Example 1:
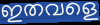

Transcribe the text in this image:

ഇതവളെ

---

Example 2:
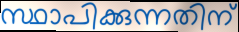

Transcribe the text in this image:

സ്ഥാപിക്കുന്നതിന്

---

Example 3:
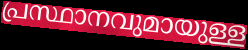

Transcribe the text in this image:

പ്രസ്ഥാനവുമായുള്ള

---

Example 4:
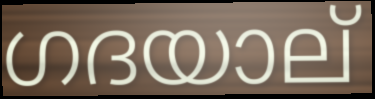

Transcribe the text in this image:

ഗദയാല്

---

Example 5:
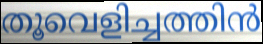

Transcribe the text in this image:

തൂവെളിച്ചത്തിൻ